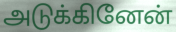
அடுக்கினேன்